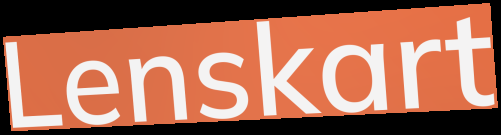
Lenskart